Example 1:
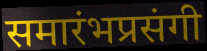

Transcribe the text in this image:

समारंभप्रसंगी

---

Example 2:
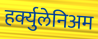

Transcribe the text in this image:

हर्क्युलेनिअम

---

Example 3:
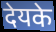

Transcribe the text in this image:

देयके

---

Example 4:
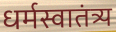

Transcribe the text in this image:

धर्मस्वातंत्र्य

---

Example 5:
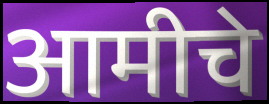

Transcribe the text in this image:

आमीचे